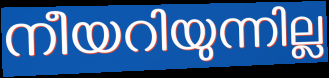
നീയറിയുന്നില്ല